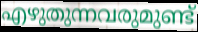
എഴുതുന്നവരുമുണ്ട്